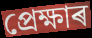
প্ৰেক্ষাৰ